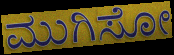
ಮುಗಿಸೋ